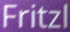
Fritzl